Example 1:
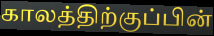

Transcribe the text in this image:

காலத்திற்குப்பின்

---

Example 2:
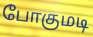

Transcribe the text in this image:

போகுமடி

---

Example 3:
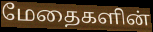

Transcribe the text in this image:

மேதைகளின்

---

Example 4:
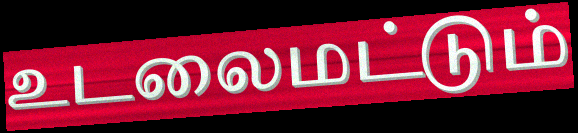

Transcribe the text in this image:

உடலைமட்டும்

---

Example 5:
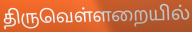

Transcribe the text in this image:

திருவெள்ளறையில்